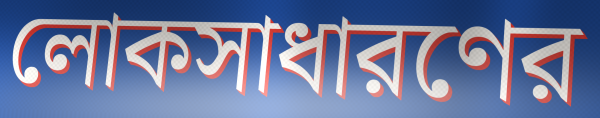
লোকসাধারণের